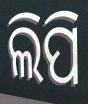
ଲିପି